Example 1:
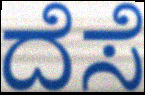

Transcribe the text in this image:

ದೆಸೆ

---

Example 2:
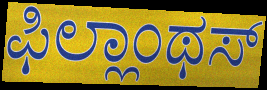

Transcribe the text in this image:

ಫಿಲ್ಲಾಂಥಸ್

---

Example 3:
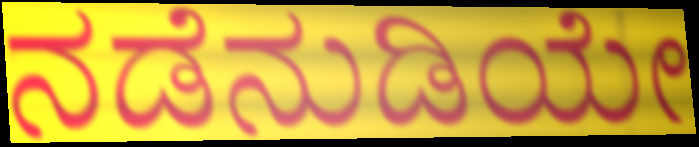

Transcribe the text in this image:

ನಡೆನುಡಿಯೇ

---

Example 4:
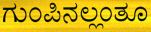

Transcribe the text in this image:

ಗುಂಪಿನಲ್ಲಂತೂ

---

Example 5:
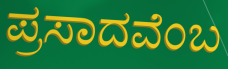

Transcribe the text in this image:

ಪ್ರಸಾದವೆಂಬ